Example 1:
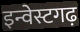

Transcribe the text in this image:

इन्वेस्टगढ़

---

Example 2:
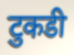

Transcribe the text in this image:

टुकडी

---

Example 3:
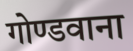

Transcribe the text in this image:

गोण्डवाना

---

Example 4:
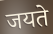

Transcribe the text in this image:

जयते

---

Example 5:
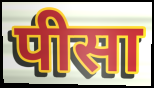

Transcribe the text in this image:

पीसा